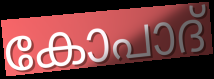
കോപാദ്